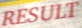
RESULT